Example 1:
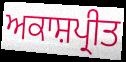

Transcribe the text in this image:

ਅਕਾਸ਼ਪ੍ਰੀਤ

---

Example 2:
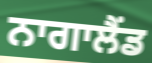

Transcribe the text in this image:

ਨਾਗਾਲੈਂਡ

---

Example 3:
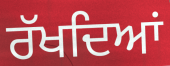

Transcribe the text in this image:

ਰੱਖਦਿਆਂ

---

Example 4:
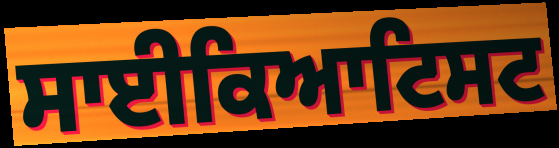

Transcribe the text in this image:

ਸਾਈਕਿਆਟਿਸਟ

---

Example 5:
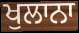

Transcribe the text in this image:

ਖੁਲਾਨਾ